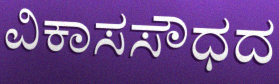
ವಿಕಾಸಸೌಧದ